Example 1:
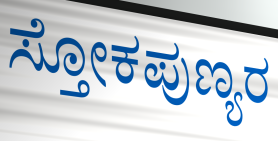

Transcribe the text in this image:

ಸ್ತೋಕಪುಣ್ಯರ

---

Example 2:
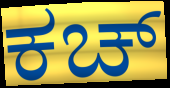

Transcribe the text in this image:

ಕಚ್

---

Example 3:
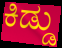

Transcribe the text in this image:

ಕಿಡ್ಡು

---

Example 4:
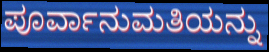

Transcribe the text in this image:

ಪೂರ್ವಾನುಮತಿಯನ್ನು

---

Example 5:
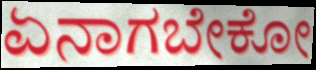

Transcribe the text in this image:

ಏನಾಗಬೇಕೋ